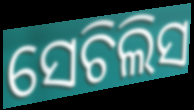
ସେଚିଲିସ